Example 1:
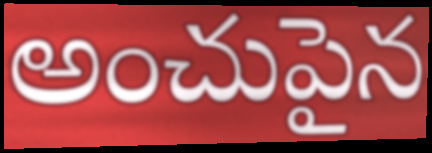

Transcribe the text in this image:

అంచుపైన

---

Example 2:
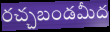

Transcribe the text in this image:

రచ్చబండమీద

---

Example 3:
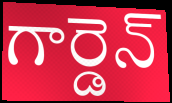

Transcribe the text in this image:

గార్డెన్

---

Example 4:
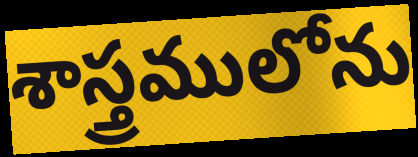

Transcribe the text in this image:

శాస్త్రములోను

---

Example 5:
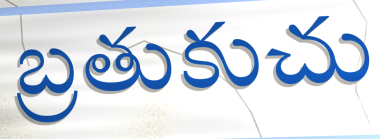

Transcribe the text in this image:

బ్రతుకుచు